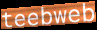
teebweb